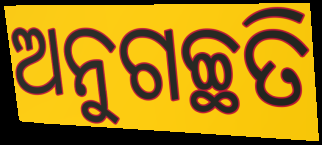
ଅନୁଗଚ୍ଛତି